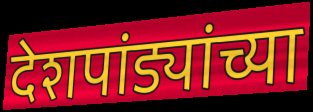
देशपांड्यांच्या